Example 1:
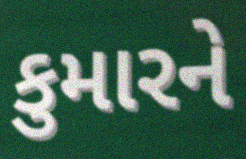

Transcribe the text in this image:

કુમારને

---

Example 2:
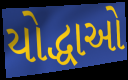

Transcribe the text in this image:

યોદ્ધાઓ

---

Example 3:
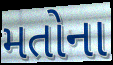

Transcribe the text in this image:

મતોના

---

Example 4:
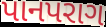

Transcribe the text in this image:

પાનપરાગ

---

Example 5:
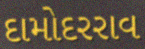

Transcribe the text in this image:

દામોદરરાવ